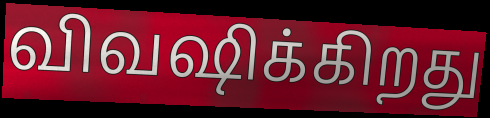
விவஷிக்கிறது